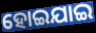
ହୋଇଯାଇ